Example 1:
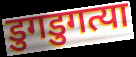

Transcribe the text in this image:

डुगडुगत्या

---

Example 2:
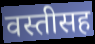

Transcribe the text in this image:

वस्तीसह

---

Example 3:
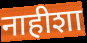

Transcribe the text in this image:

नाहीशा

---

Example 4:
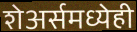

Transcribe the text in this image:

शेअर्समध्येही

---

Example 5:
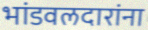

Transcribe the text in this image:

भांडवलदारांना